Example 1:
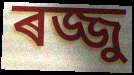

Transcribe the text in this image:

ৰজ্জু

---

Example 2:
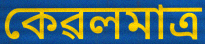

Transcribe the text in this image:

কেৱলমাত্ৰ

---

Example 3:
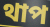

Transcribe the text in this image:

থাপ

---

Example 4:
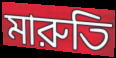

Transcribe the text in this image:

মাৰুতি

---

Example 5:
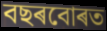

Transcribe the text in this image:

বছৰবোৰত